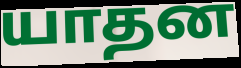
யாதன